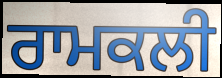
ਰਾਮਕਲੀ